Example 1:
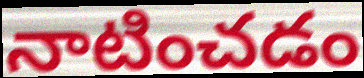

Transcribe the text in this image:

నాటించడం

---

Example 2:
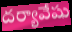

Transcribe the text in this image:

దర్యావేషు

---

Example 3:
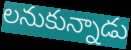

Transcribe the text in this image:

లనుకున్నాడు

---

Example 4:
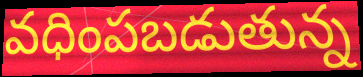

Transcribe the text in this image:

వధింపబడుతున్న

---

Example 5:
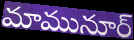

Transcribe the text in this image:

మామునూర్